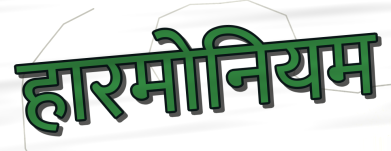
हारमोनियम